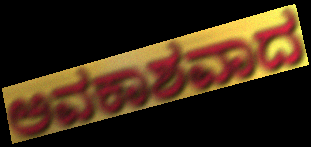
ಅವಕಾಶವಾದ